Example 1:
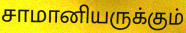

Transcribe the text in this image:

சாமானியருக்கும்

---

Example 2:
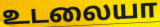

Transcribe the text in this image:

உடலையா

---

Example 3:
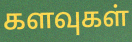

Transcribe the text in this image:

களவுகள்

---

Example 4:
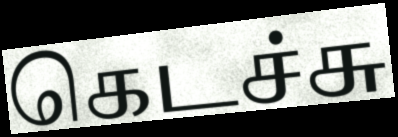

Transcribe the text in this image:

கெடச்சு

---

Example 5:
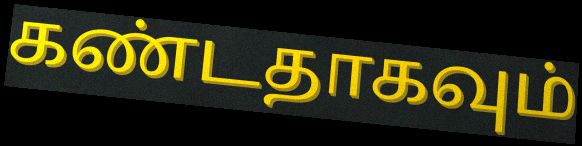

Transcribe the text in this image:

கண்டதாகவும்